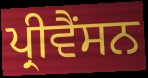
ਪ੍ਰੀਵੈਂਸਨ